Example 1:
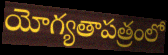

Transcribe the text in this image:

యోగ్యతాపత్రంలో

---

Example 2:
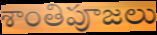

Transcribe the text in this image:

శాంతిపూజలు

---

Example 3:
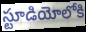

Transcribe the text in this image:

స్టూడియోలోకి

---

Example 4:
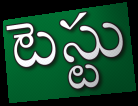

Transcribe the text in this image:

టెస్టు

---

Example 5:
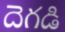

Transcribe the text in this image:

దెగడి